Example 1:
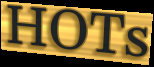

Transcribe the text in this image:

HOTs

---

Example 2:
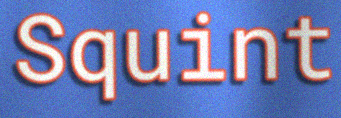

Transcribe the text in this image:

Squint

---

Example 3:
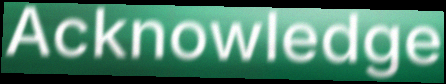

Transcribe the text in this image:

Acknowledge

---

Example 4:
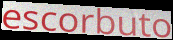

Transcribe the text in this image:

escorbuto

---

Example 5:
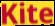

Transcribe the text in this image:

Kite